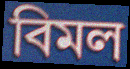
বিমল